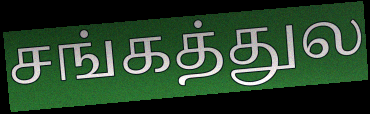
சங்கத்துல